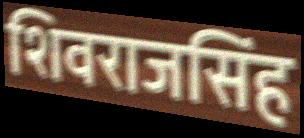
शिवराजसिंह